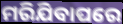
ମରିଯିବାପରେ